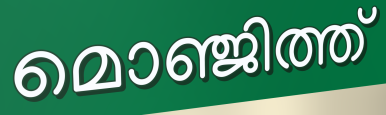
മൊഞ്ജിത്ത്